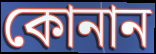
কোনান